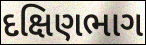
દક્ષિણભાગ